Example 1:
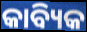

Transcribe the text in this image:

କାବ୍ୟିକ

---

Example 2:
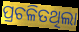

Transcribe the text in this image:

ପ୍ରଚଳିତଥିଲା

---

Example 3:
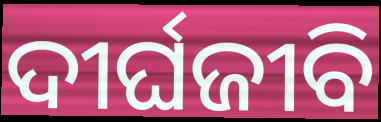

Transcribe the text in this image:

ଦୀର୍ଘଜୀବି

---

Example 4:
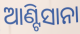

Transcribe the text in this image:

ଆଣ୍ଟିସାନା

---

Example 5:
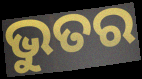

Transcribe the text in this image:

ଭୁତର